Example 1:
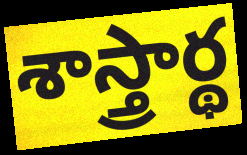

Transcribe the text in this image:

శాస్త్రార్థ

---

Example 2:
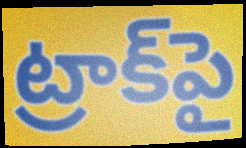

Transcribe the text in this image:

ట్రాక్‌పై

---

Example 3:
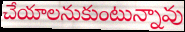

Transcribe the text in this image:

చేయాలనుకుంటున్నావు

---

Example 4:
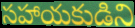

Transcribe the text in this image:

సహాయకుడిని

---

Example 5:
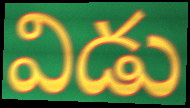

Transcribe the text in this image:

విడు